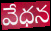
వేధన